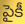
పైకీ